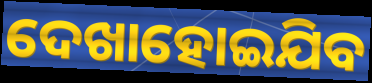
ଦେଖାହୋଇଯିବ